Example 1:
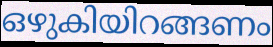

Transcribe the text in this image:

ഒഴുകിയിറങ്ങണം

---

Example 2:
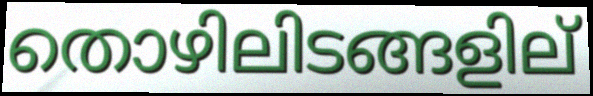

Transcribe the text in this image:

തൊഴിലിടങ്ങളില്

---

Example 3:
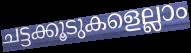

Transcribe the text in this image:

ചട്ടക്കൂടുകളെല്ലാം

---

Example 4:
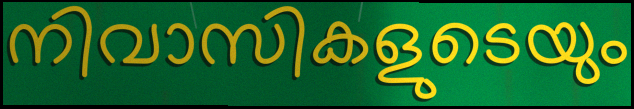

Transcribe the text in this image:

നിവാസികളുടെയും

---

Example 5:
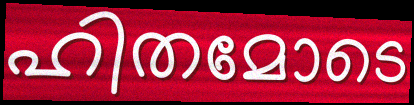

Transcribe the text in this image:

ഹിതമോടെ